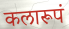
कलारूपं